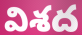
విశద